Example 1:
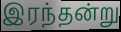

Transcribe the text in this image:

இரந்தன்று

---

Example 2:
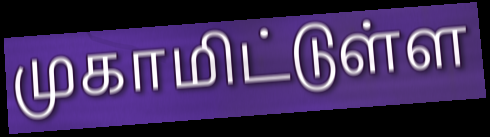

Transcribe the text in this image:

முகாமிட்டுள்ள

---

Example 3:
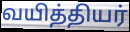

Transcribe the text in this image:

வயித்தியர்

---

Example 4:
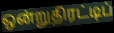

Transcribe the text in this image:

ஒன்றுதிரட்டிப்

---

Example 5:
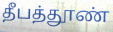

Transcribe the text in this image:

தீபத்தூண்